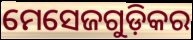
ମେସେଜଗୁଡ଼ିକର